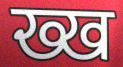
ख्ख